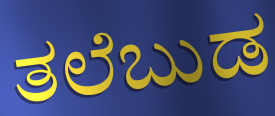
ತಲೆಬುಡ